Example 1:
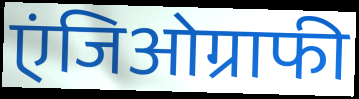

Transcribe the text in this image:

एंजिओग्राफी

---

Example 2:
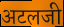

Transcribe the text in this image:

अटलजी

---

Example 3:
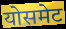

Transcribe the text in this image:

योसमेट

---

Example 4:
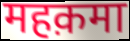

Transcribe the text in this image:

महक़मा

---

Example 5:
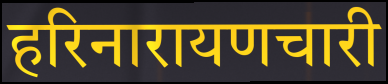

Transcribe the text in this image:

हरिनारायणचारी